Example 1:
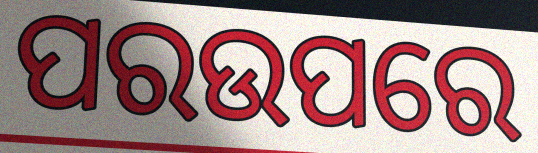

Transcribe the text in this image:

ପରଉପରେ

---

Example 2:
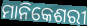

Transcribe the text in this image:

ମାନିକେଶରୀ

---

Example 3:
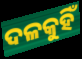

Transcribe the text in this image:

ଦଳକୁହିଁ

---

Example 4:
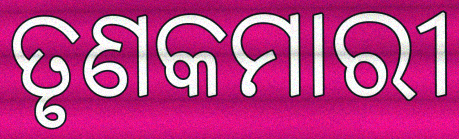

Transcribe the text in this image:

ତୃଣକମାରୀ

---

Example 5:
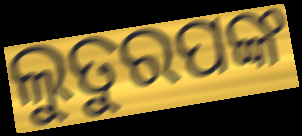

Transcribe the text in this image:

ଲୁତୁରପଙ୍କ